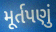
મૂર્તપણું